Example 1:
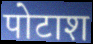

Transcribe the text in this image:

पोटाश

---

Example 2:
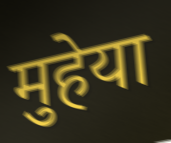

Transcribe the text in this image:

मुहेया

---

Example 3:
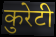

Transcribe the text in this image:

कुरेटी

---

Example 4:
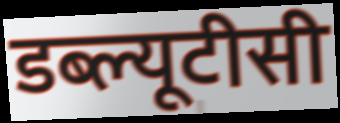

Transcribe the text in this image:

डब्ल्यूटीसी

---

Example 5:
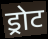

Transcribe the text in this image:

ड्रोट